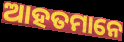
ଆହତମାନେ